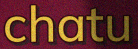
chatu